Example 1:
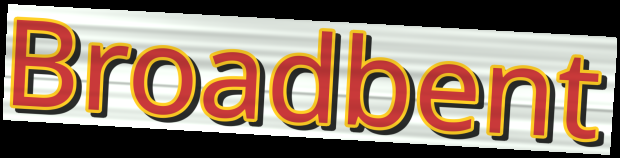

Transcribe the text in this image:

Broadbent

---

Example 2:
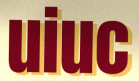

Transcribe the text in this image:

uiuc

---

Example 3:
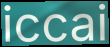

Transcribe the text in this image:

iccai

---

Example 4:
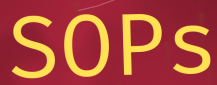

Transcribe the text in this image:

SOPs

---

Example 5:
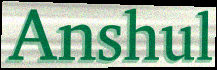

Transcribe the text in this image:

Anshul